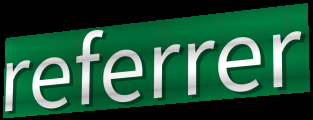
referrer